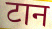
टान